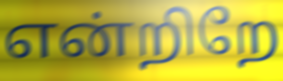
என்றிறே